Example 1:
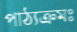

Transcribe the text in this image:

পাঠ্যক্ৰমঃ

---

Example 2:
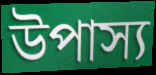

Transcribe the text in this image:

উপাস্য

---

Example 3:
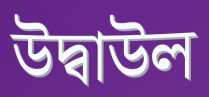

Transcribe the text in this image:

উদ্বাউল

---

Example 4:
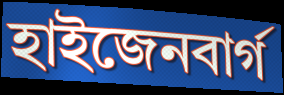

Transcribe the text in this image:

হাইজেনবাৰ্গ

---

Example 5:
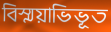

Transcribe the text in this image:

বিস্ময়াভিভূত